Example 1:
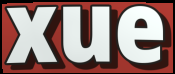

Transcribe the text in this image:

xue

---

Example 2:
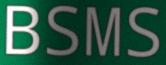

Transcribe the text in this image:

BSMS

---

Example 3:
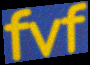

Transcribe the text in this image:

fvf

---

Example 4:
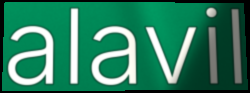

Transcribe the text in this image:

alavil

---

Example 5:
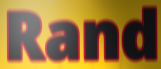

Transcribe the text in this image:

Rand